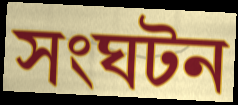
সংঘটন